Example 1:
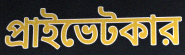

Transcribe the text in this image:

প্রাইভেটকার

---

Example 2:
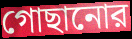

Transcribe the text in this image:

গোছানোর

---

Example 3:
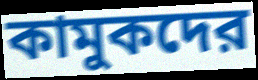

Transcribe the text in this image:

কামুকদের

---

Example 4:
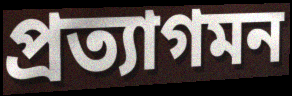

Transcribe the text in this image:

প্রত্যাগমন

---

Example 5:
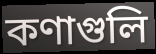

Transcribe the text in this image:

কণাগুলি